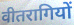
वीतरागियों